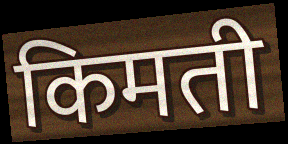
किमती